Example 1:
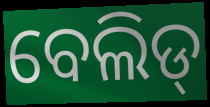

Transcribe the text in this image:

ବେଲିଡ୍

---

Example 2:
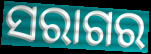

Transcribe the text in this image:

ସରାଗର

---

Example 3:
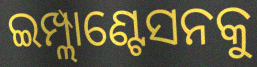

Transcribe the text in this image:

ଇମ୍ପ୍ଲାଣ୍ଟେସନକୁ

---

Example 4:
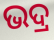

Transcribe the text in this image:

ଭଦ୍ର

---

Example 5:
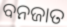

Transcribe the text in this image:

ବନଜାତ